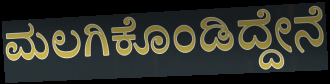
ಮಲಗಿಕೊಂಡಿದ್ದೇನೆ